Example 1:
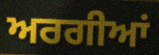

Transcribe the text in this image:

ਅਰਗੀਆਂ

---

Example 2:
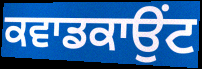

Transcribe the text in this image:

ਕਵਾਡਕਾਉਂਟ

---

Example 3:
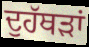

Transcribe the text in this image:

ਦੁਹੱਥੜਾਂ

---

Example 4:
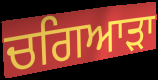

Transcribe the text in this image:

ਚਗਿਆੜਾ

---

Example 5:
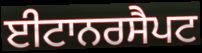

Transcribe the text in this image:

ਈਟਾਨਰਸੈਪਟ